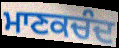
ਮਾਣਕਚੰਦ